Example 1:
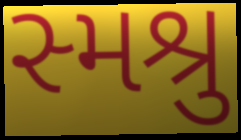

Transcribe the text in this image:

સ્મશ્રુ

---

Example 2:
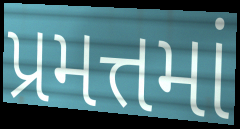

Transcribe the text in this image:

પ્રમત્તમાં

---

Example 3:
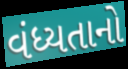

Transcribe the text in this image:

વંધ્યતાનો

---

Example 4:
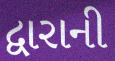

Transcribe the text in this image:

દ્વારાની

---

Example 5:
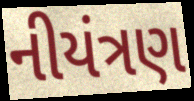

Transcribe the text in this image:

નીયંત્રણ